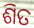
ଶିତ